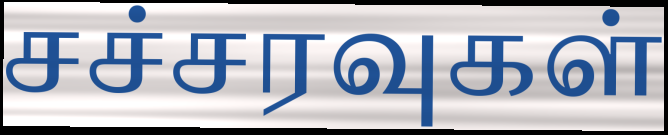
சச்சரவுகள்